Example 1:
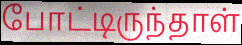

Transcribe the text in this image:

போட்டிருந்தாள்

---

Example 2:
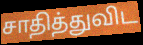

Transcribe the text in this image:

சாதித்துவிட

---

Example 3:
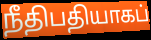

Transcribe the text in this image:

நீதிபதியாகப்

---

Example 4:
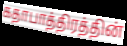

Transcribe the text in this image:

கதாபாத்திரத்தின்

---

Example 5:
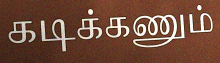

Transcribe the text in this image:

கடிக்கணும்